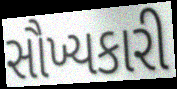
સૌખ્યકારી